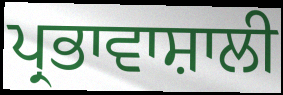
ਪ੍ਰਭਾਵਾਸ਼ਾਲੀ